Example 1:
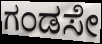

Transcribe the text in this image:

ಗಂಡಸೇ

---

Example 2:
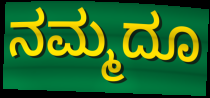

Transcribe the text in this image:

ನಮ್ಮದೂ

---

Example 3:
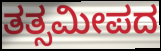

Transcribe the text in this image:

ತತ್ಸಮೀಪದ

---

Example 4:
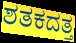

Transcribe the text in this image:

ಶತಕದತ್ತ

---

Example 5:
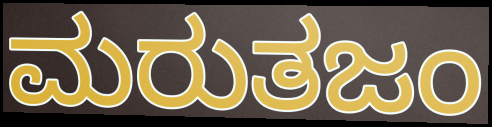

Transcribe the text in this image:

ಮರುತಜಂ